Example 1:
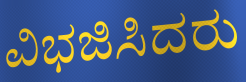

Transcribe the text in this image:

ವಿಭಜಿಸಿದರು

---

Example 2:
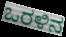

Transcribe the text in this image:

ಒರಳಿನ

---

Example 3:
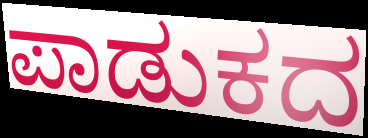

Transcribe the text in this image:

ಪಾಡುಕದ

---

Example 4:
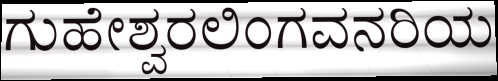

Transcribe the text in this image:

ಗುಹೇಶ್ವರಲಿಂಗವನರಿಯ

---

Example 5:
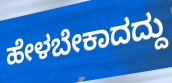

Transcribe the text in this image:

ಹೇಳಬೇಕಾದದ್ದು